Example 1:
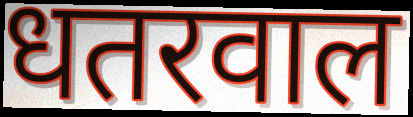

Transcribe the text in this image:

धतरवाल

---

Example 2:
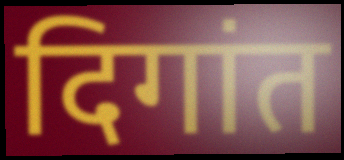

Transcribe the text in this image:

दिगांत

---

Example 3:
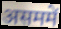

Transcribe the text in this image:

असममें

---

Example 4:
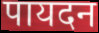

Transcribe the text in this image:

पायदन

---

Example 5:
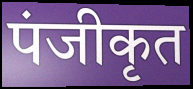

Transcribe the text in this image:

पंजीकृत